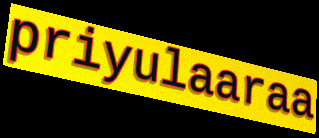
priyulaaraa